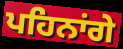
ਪਹਿਨਾਂਗੇ